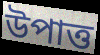
উপাত্ত